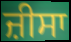
ਜ਼ੀਸਾ